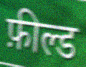
फ़ील्ड